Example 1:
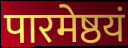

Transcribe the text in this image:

पारमेष्ठयं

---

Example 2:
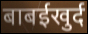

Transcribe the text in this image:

बाबईखुर्द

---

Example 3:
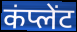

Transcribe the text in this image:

कंप्लेंट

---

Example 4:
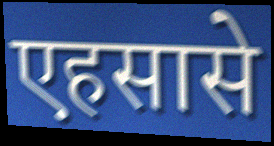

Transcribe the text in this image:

एहसासे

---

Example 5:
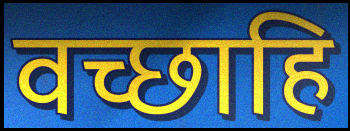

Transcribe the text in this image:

वच्छाहि